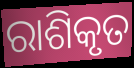
ରାଶିକୃତ